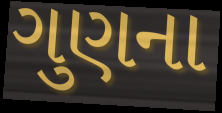
ગુણના